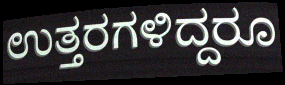
ಉತ್ತರಗಳಿದ್ದರೂ